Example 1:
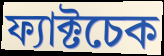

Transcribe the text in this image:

ফ্যাক্টচেক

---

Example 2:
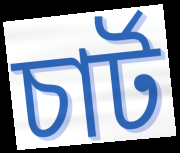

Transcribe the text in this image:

চার্ট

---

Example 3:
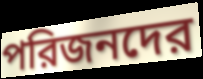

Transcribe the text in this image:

পরিজনদের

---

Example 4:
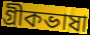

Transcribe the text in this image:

গ্রীকভাষা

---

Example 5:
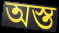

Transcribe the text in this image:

অস্ত